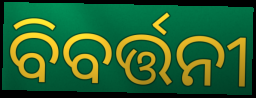
ବିବର୍ତ୍ତନୀ